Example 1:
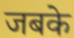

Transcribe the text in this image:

जबके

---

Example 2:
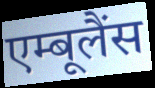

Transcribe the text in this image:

एम्बूलैंस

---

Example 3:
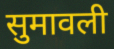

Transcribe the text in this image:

सुमावली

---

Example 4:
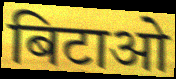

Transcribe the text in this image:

बिटाओ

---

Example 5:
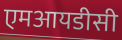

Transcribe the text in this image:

एमआयडीसी